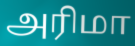
அரிமா